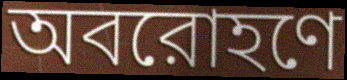
অবরোহণে